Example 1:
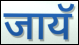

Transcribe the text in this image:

जायॅ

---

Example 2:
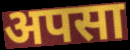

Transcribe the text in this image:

अपसा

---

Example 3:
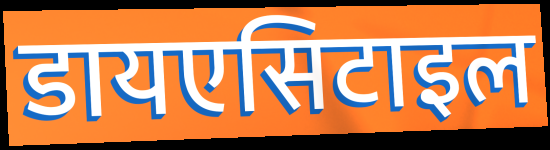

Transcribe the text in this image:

डायएसिटाइल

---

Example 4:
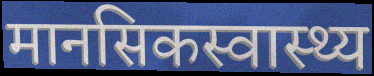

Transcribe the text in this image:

मानसिकस्वास्थ्य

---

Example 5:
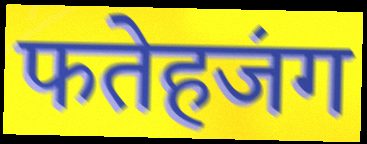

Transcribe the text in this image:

फतेहजंग